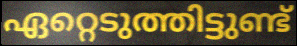
ഏറ്റെടുത്തിട്ടുണ്ട്